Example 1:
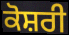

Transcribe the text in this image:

ਕੋਸ਼ਰੀ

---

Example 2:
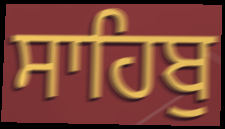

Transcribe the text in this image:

ਸਾਹਿਬੁ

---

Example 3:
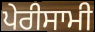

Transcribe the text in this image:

ਪੇਰੀਸਾਮੀ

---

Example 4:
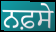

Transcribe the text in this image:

ਨਫ਼ਸੇ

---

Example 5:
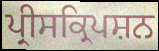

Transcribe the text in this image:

ਪ੍ਰੀਸਕ੍ਰਿਪਸ਼ਨ